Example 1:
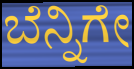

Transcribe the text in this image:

ಬೆನ್ನಿಗೇ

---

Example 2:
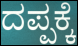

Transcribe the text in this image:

ದಪ್ಪಕ್ಕೆ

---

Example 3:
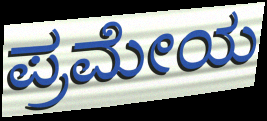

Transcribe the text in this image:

ಪ್ರಮೇಯ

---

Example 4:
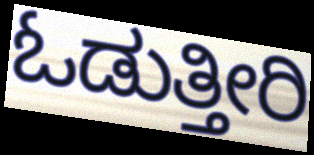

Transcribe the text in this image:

ಓಡುತ್ತೀರಿ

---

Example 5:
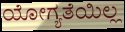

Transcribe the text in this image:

ಯೋಗ್ಯತೆಯಿಲ್ಲ